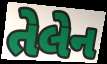
તેલેન